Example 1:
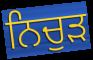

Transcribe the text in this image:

ਨਿਚੁੜ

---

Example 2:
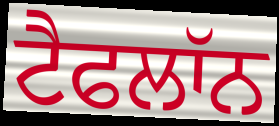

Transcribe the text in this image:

ਟੈਫਲਾੱਨ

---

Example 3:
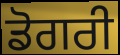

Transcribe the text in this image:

ਡੋਗਰੀ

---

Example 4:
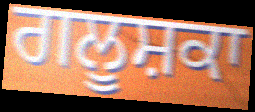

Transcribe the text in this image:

ਗਲੂਸ਼ਕਾ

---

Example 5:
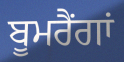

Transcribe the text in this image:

ਬੂਮਰੈਂਗਾਂ